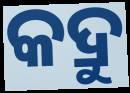
କଦ୍ରୁ